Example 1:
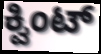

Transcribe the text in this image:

ಕ್ವಿಂಟ್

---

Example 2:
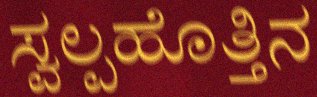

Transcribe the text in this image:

ಸ್ವಲ್ಪಹೊತ್ತಿನ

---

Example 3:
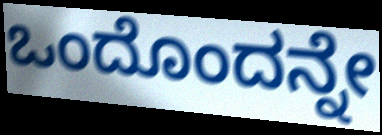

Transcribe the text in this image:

ಒಂದೊಂದನ್ನೇ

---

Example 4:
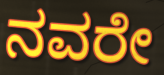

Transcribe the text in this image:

ನವರೇ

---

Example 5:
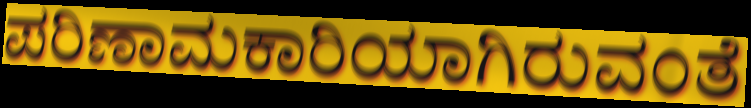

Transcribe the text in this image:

ಪರಿಣಾಮಕಾರಿಯಾಗಿರುವಂತೆ